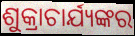
ଶୁକ୍ରାଚାର୍ଯ୍ୟଙ୍କର